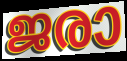
ജരാ